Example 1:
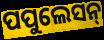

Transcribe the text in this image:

ପପୁଲେସନ୍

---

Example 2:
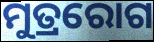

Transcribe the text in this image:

ମୁତ୍ରରୋଗ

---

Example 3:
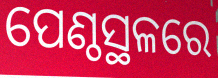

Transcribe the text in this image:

ପେଣ୍ଠସ୍ଥଳରେ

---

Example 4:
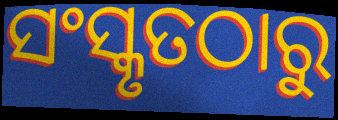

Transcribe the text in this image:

ସଂସ୍କୃତଠାରୁ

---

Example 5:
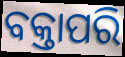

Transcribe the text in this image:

ବକ୍ତାପରି